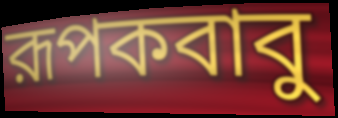
রূপকবাবু